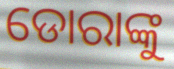
ଡୋରାଙ୍କୁ